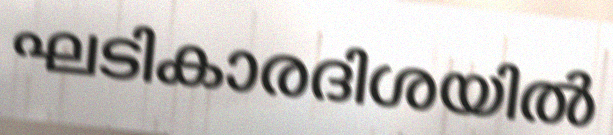
ഘടികാരദിശയിൽ